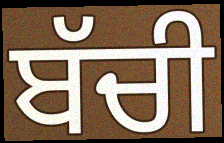
ਬੱਚੀ